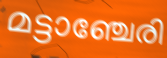
മട്ടാഞ്ചേരി